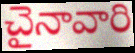
చైనావారి